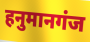
हनुमानगंज